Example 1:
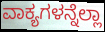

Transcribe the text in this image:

ವಾಕ್ಯಗಳನ್ನೆಲ್ಲಾ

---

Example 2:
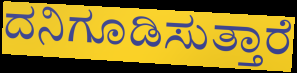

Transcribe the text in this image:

ದನಿಗೂಡಿಸುತ್ತಾರೆ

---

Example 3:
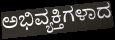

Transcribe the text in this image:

ಅಭಿವ್ಯಕ್ತಿಗಳಾದ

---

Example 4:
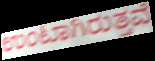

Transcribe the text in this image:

ಉಂಟಾಗಿರುತ್ತವೆ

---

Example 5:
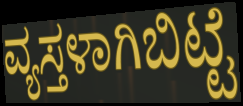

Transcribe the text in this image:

ವ್ಯಸ್ತಳಾಗಿಬಿಟ್ಟೆ